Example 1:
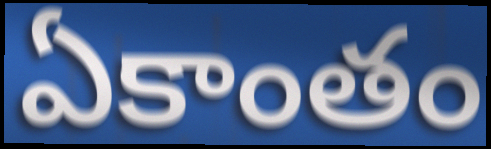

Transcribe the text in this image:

ఏకాంతం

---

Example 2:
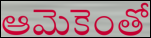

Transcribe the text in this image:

ఆమెకెంతో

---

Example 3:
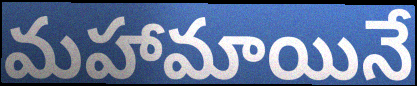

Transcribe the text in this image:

మహామాయినే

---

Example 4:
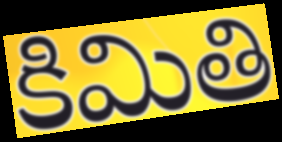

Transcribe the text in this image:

కిమితి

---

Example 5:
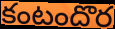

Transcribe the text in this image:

కంటందొర